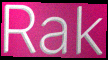
Rak